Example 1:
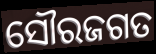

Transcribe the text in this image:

ସୌରଜଗତ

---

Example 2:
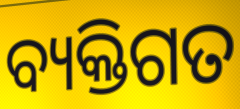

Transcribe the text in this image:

ବ୍ୟକ୍ତିଗତ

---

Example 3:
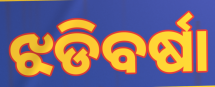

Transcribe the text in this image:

ଝଡିବର୍ଷା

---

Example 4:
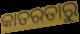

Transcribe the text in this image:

କାତରତାରୁ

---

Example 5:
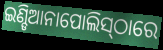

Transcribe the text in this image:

ଇଣ୍ଡିଆନାପୋଲିସ୍‍ଠାରେ